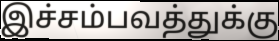
இச்சம்பவத்துக்கு